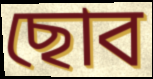
ছোব